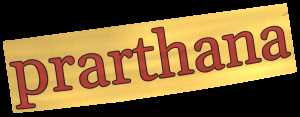
prarthana